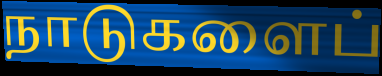
நாடுகளைப்